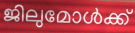
ജിലുമോൾക്ക്